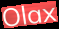
Olax